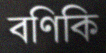
বণিকি